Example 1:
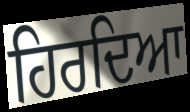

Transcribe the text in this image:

ਹਿਰਦਿਆ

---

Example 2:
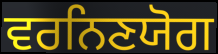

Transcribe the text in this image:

ਵਰਨਿਣਯੋਗ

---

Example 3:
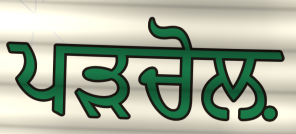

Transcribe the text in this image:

ਪੜਚੋਲ਼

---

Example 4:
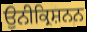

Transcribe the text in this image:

ਉਨੀਕ੍ਰਿਸ਼ਨਨ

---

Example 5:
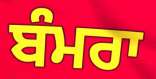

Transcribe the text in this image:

ਬੰਮਰਾ